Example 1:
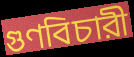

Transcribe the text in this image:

গুণবিচারী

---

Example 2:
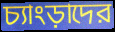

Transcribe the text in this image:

চ্যাংড়াদের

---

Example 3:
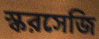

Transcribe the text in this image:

স্করসেজি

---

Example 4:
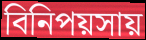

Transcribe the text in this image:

বিনিপয়সায়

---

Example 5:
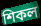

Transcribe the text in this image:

শিকল